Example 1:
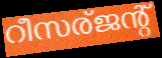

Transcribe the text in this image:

റീസര്ജന്റ്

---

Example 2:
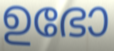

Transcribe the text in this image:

ഉഭോ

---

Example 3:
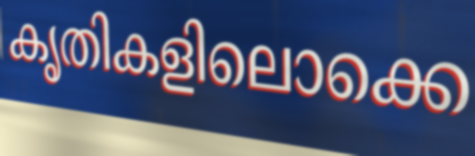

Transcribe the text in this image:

കൃതികളിലൊക്കെ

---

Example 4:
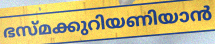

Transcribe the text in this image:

ഭസ്മക്കുറിയണിയാൻ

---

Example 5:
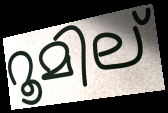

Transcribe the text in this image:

റൂമില്